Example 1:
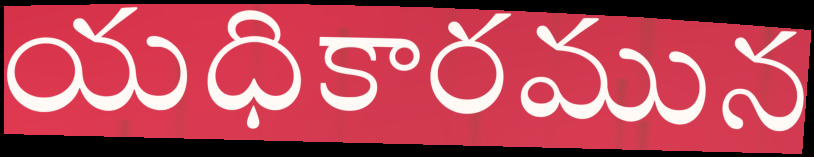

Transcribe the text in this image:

యధికారమున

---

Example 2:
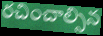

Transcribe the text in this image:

రచించాల్సిన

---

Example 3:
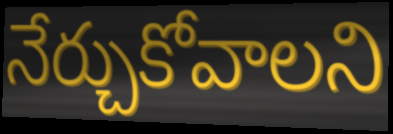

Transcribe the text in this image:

నేర్చుకోవాలని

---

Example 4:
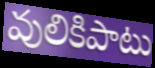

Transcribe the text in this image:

వులికిపాటు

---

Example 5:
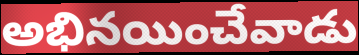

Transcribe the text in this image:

అభినయించేవాడు